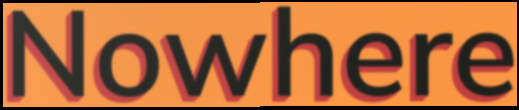
Nowhere